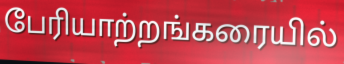
பேரியாற்றங்கரையில்